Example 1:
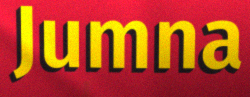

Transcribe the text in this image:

Jumna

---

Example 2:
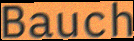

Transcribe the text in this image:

Bauch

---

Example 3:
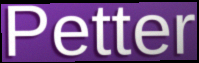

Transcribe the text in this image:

Petter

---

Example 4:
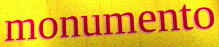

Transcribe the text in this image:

monumento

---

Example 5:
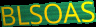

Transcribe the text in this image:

BLSOAS